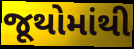
જૂથોમાંથી